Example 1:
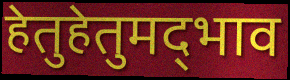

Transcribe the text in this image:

हेतुहेतुमद्भाव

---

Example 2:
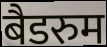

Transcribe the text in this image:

बैडरुम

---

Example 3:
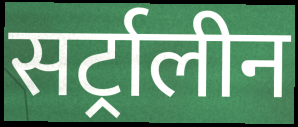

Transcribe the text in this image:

सर्ट्रालीन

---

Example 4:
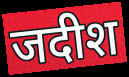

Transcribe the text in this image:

जदीश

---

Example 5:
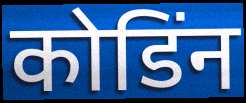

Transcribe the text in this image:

कोडिंन